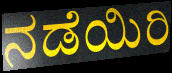
ನಡೆಯಿರಿ